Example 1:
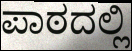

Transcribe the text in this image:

ಪಾಠದಲ್ಲಿ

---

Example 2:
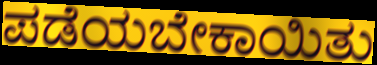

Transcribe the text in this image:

ಪಡೆಯಬೇಕಾಯಿತು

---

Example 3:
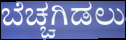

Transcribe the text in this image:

ಬೆಚ್ಚಗಿಡಲು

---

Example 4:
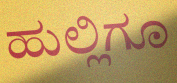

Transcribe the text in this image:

ಹುಲ್ಲಿಗೂ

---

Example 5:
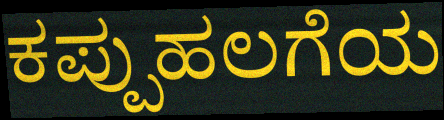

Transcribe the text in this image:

ಕಪ್ಪುಹಲಗೆಯ